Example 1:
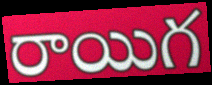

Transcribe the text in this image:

రాయిగ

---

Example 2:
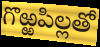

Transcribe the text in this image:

గొఱ్ఱపిల్లతో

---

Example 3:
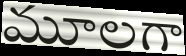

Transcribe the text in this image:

మూలగా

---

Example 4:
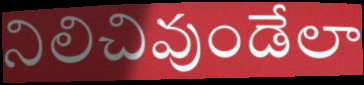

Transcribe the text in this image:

నిలిచివుండేలా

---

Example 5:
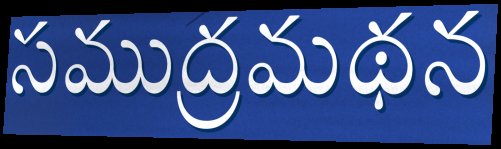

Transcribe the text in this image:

సముద్రమథన